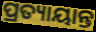
ପ୍ରତ୍ୟାୟାନ୍ତ